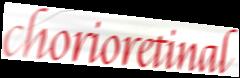
chorioretinal